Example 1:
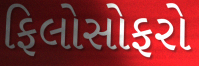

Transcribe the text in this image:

ફિલોસોફરો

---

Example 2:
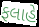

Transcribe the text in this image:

ફલાહે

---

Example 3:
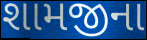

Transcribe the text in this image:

શામજીના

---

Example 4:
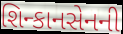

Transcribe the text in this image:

શિન્કાનસેનની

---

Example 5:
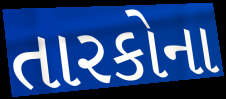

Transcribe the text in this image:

તારકોના